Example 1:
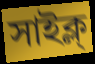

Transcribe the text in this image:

সাইক্ল্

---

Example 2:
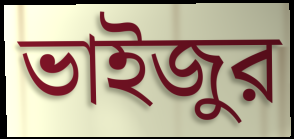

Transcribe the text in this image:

ভাইজুর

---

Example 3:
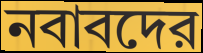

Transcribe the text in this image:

নবাবদের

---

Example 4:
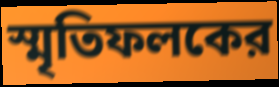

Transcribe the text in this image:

স্মৃতিফলকের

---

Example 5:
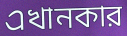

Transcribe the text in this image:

এখানকার